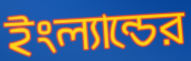
ইংল্যান্ডের